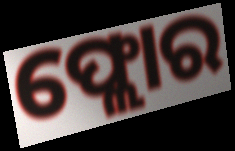
ଫ୍ଲୋର